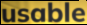
usable